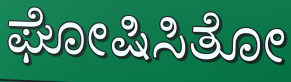
ಘೋಷಿಸಿತೋ